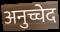
अनुच्चेद